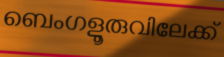
ബെംഗളൂരുവിലേക്ക്